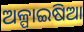
ଅଳ୍ପାଇଷିଆ